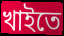
খাইতে